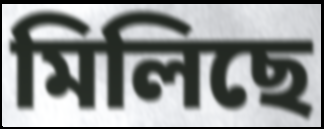
মিলিছে